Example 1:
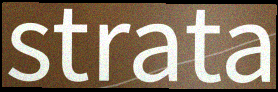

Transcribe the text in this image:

strata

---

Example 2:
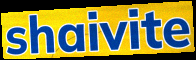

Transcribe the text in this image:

shaivite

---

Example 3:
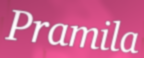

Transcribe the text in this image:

Pramila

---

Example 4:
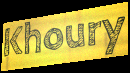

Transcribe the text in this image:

Khoury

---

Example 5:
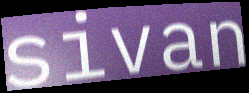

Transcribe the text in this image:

sivan